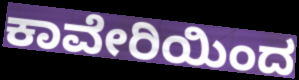
ಕಾವೇರಿಯಿಂದ